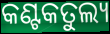
କଣ୍ଟକତୁଲ୍ୟ